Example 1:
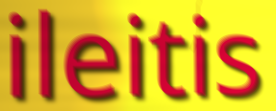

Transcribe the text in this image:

ileitis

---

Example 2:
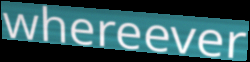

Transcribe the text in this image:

whereever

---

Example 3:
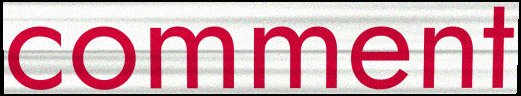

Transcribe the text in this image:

comment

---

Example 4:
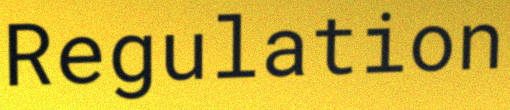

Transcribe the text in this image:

Regulation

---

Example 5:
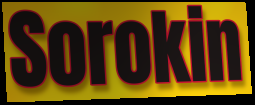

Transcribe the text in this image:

Sorokin